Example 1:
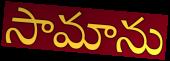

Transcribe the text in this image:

సామాను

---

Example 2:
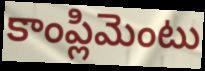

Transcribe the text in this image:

కాంప్లిమెంటు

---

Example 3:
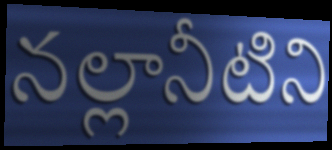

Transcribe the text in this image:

నల్లానీటిని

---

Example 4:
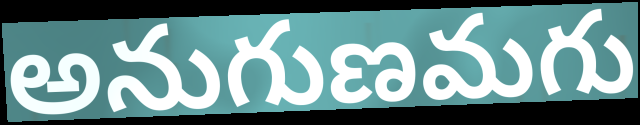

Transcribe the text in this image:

అనుగుణమగు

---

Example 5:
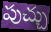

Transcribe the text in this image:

పుచ్చు